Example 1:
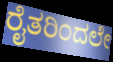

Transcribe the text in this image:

ರೈತರಿಂದಲೇ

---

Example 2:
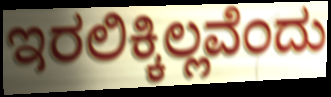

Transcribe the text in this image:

ಇರಲಿಕ್ಕಿಲ್ಲವೆಂದು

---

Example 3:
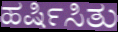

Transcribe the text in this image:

ಹರ್ಷಿಸಿತು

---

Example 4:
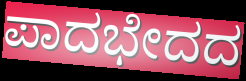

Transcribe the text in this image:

ಪಾದಭೇದದ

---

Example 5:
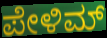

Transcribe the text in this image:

ಪೇಳಿಮ್